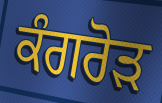
ਕੰਗਰੋੜ